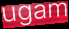
ugam